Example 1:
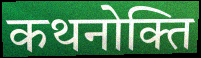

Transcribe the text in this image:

कथनोक्ति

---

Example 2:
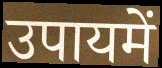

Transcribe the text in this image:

उपायमें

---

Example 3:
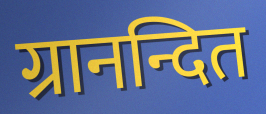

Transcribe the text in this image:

ग्रानन्दित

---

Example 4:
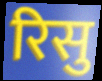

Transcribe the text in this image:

रिसु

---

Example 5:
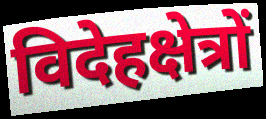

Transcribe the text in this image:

विदेहक्षेत्रों